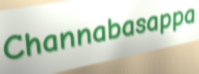
Channabasappa